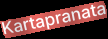
Kartapranata